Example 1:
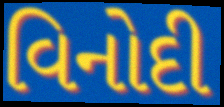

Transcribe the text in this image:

વિનોદી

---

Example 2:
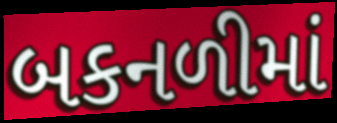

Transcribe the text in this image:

બકનળીમાં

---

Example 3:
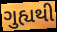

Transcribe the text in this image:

ગુહ્યથી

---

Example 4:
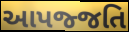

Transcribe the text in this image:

આપજ્જતિ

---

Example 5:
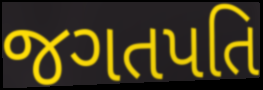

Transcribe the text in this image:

જગતપતિ